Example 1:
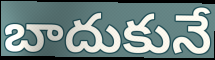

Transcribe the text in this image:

బాదుకునే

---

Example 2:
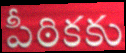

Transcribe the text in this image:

పీఠికకు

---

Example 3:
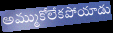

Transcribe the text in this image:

అమ్ముకోలేకపోయాడు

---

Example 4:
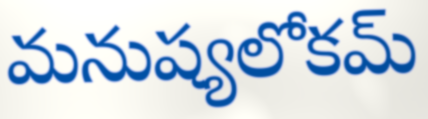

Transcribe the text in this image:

మనుష్యలోకమ్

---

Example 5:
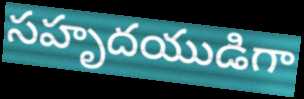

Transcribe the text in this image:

సహృదయుడిగా